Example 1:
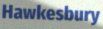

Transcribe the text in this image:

Hawkesbury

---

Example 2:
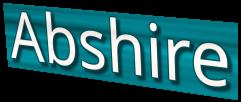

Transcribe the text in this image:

Abshire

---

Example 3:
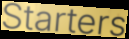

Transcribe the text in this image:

Starters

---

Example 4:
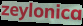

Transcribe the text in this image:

zeylonica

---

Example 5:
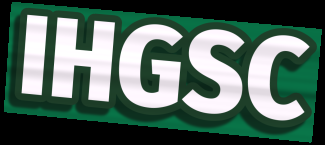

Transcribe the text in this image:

IHGSC